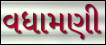
વધામણી